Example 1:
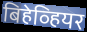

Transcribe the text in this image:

बिहेव्हियर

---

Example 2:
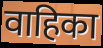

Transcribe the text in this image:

वाहिका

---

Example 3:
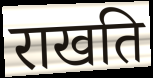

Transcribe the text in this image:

राखति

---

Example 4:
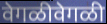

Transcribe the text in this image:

वेगळीवेगळी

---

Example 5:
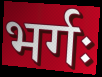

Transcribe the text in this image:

भर्गः